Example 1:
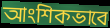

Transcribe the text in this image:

আংশিকভাবে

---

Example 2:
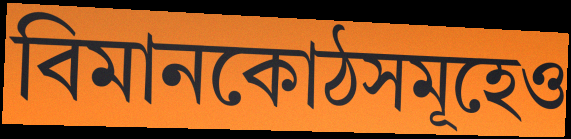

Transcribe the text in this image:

বিমানকোঠসমূহেও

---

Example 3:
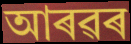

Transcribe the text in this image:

আৰৱৰ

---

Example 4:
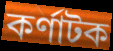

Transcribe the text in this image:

কৰ্ণাটক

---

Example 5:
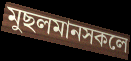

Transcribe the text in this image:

মুছলমানসকলে